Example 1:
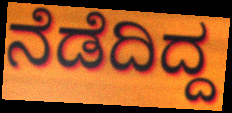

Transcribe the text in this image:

ನೆಡೆದಿದ್ದ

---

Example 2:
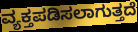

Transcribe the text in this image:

ವ್ಯಕ್ತಪಡಿಸಲಾಗುತ್ತದೆ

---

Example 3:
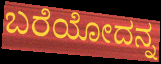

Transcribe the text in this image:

ಬರೆಯೋದನ್ನ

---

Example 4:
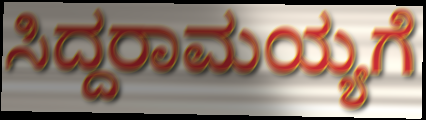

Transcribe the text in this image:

ಸಿದ್ದರಾಮಯ್ಯಗೆ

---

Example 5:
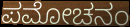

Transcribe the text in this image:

ಪಮೋಚನಂ